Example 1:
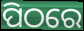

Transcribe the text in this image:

ପିଠରେ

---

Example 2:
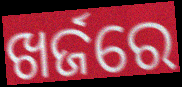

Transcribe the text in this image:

ଖର୍ଜରେ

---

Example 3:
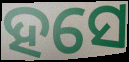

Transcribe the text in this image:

ହସେ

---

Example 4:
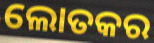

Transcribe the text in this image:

ଲୋତକର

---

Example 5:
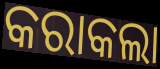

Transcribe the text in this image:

କରାକଲା